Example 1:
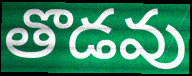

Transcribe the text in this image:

తొడవు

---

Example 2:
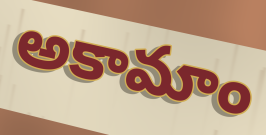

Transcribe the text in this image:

అకామాం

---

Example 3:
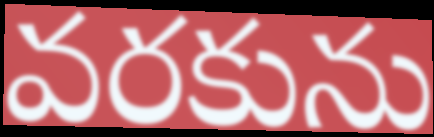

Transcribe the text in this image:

వరకును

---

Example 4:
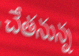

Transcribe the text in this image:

చేతనున్న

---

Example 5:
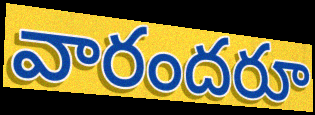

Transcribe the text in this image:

వారందరూ